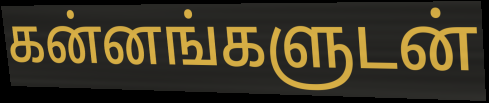
கன்னங்களுடன்